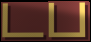
டப